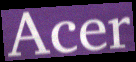
Acer